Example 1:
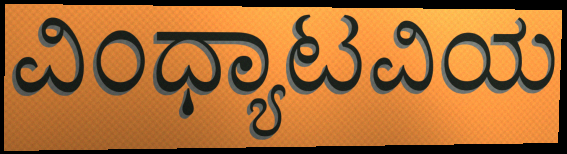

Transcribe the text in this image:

ವಿಂಧ್ಯಾಟವಿಯ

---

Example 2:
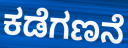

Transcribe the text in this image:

ಕಡೆಗಣನೆ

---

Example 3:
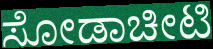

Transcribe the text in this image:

ಸೋಡಾಚೀಟಿ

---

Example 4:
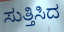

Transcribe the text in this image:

ಸುತ್ತಿಸಿದ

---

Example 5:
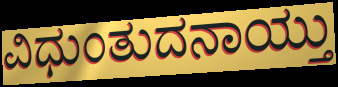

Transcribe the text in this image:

ವಿಧುಂತುದನಾಯ್ತು